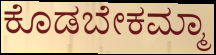
ಕೊಡಬೇಕಮ್ಮಾ